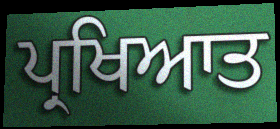
ਪ੍ਰਖਿਆਤ